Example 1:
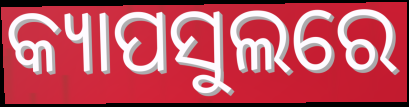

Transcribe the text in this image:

କ୍ୟାପସୁଲରେ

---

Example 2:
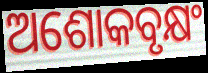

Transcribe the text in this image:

ଅଶୋକବୃକ୍ଷଂ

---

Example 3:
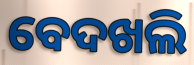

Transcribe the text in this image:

ବେଦଖଲି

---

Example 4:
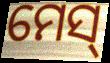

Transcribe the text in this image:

ମେସ୍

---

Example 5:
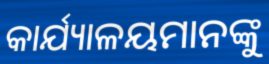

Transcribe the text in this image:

କାର୍ଯ୍ୟାଳୟମାନଙ୍କୁ